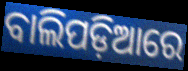
ବାଲିପଡ଼ିଆରେ